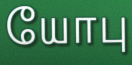
யோபு